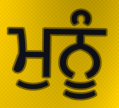
ਮੁਨੂੰ